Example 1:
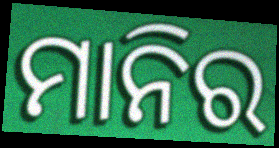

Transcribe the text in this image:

ମାନିର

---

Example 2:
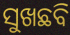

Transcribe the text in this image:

ସୁଖଛବି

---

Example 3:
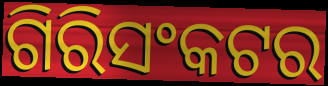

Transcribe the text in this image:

ଗିରିସଂକଟର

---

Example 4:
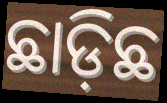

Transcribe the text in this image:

ଛାଡ଼ିଛ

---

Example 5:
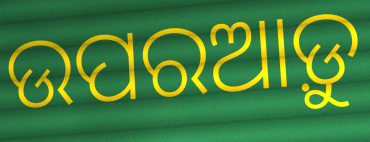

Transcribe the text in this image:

ଉପରଆଡ଼ୁ